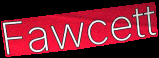
Fawcett